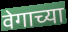
वेगाच्या